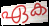
ഏക